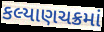
કલ્યાણચક્રમાં